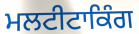
ਮਲਟੀਟਾਕਿੰਗ